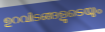
ഉറവിടങ്ങളുടെയും